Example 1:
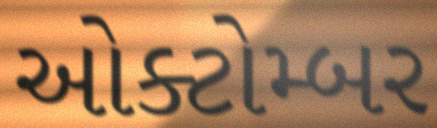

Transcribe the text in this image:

ઓક્ટોમ્બર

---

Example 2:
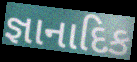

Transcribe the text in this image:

જ્ઞાનાદિક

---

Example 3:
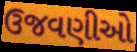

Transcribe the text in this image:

ઉજવણીઓ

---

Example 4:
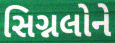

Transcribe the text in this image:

સિગ્નલોને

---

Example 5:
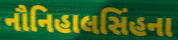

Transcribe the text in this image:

નૌનિહાલસિંહના